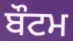
ਬੌਟਮ